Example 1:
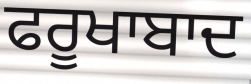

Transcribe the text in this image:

ਫਰੂਖਾਬਾਦ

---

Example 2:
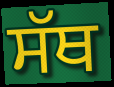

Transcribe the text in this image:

ਸੱਥ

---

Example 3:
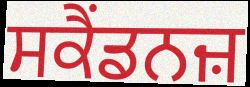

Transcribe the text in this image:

ਸਕੈਂਡਨਜ਼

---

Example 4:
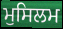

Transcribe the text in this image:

ਮੁਸਿਲਮ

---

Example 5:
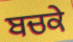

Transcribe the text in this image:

ਬਚਕੇ